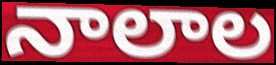
నాలాల